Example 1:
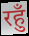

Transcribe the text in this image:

रहुँ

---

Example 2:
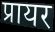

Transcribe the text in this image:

प्रायर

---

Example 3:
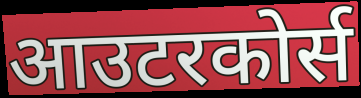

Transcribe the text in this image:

आउटरकोर्स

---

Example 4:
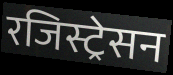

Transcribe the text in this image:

रजिस्ट्रेसन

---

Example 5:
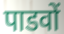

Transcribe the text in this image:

पाडवों